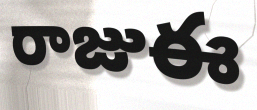
రాజుఈ